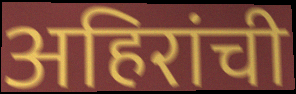
अहिरांची